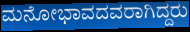
ಮನೋಭಾವದವರಾಗಿದ್ದರು